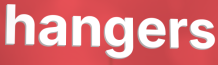
hangers